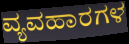
ವ್ಯವಹಾರಗಳ